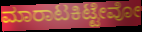
ಮಾರಾಟಕಿಟ್ಟೇವೋ